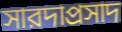
সারদাপ্রসাদ